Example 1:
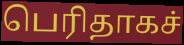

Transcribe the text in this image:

பெரிதாகச்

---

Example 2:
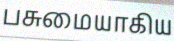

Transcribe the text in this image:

பசுமையாகிய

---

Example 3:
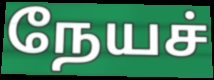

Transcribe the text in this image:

நேயச்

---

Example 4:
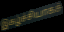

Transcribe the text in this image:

இகழ்ச்சியாகச்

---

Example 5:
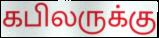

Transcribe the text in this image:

கபிலருக்கு